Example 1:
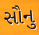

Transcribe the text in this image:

સૌનુ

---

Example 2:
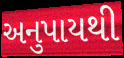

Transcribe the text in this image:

અનુપાયથી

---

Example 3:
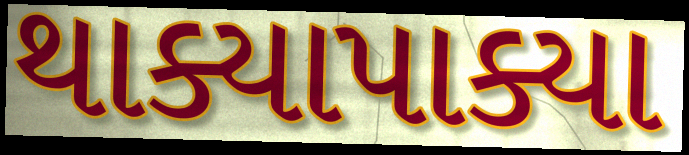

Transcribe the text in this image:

થાક્યાપાક્યા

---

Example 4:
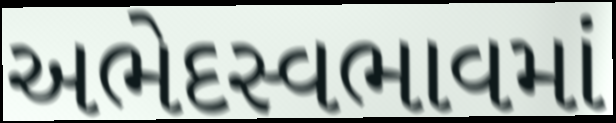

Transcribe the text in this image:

અભેદસ્વભાવમાં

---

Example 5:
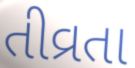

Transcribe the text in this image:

તીવ્રતા